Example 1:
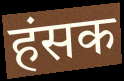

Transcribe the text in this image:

हंसक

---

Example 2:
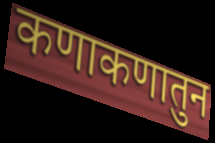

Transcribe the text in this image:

कणाकणातुन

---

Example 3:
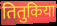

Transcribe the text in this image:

तितुकिया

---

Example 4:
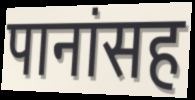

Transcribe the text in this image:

पानांसह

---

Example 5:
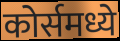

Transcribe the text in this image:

कोर्समध्ये